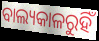
ବାଲ୍ୟକାଳରୁହିଁ